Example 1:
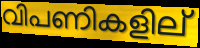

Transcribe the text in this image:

വിപണികളില്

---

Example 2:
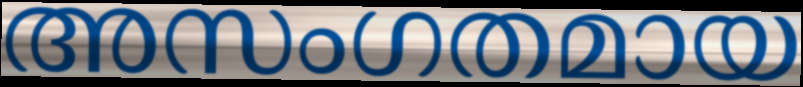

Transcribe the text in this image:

അസംഗതമായ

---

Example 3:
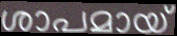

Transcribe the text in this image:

ശാപമായ്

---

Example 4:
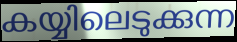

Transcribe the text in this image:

കയ്യിലെടുക്കുന്ന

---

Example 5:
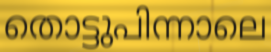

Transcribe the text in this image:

തൊട്ടുപിന്നാലെ